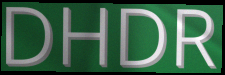
DHDR